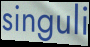
singuli